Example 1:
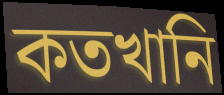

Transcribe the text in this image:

কতখানি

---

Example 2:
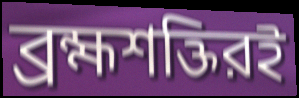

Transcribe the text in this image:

ব্রহ্মশক্তিরই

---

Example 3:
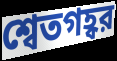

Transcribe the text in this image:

শ্বেতগহ্বর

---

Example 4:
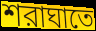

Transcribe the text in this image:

শরাঘাতে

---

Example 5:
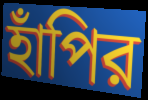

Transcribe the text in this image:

হাঁপির